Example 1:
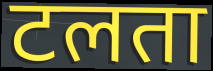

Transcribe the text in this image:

टलता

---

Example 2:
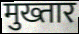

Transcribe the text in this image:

मुख्‍तार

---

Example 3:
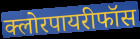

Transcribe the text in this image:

क्लोरपायरीफॉस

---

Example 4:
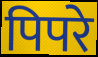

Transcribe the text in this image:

पिपरे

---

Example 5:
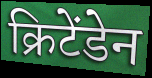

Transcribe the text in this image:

क्रिटेंडेन